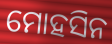
ମୋହସିନ